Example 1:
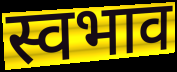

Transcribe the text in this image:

स्वभाव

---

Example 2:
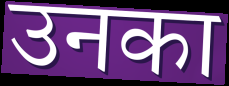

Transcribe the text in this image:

उनका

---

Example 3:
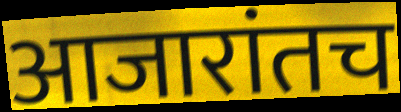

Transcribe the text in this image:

आजारांतच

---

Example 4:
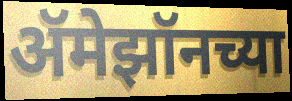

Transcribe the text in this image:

ॲमेझॉनच्या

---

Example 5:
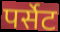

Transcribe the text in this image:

पर्सेट